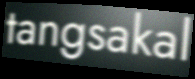
tangsakal